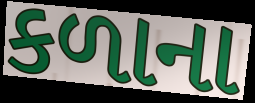
કળાના